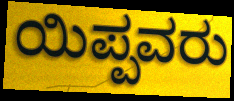
ಯಿಪ್ಪವರು